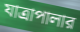
যাত্রাপালার